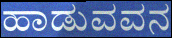
ಹಾಡುವವನ